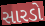
સારડો